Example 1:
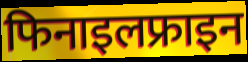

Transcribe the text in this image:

फिनाइलफ्राइन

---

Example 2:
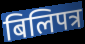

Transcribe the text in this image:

बिलिपत्र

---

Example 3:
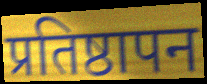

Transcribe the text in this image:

प्रतिष्ठापन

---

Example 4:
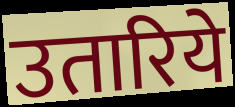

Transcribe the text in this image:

उतारिये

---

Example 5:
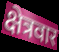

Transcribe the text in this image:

क्षेत्रवार